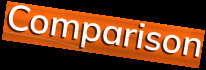
Comparison